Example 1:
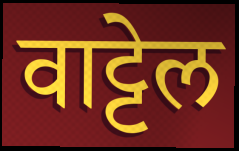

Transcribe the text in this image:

वाट्टेल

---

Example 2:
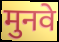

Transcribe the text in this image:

मुनवे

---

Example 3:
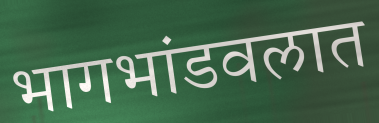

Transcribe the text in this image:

भागभांडवलात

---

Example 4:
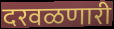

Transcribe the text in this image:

दरवळणारी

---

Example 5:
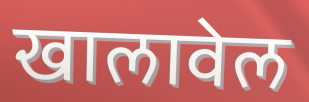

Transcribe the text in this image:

खालावेल